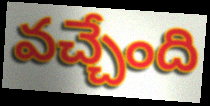
వచ్చేంది